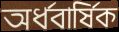
অর্ধবার্ষিক